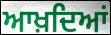
ਆਖ਼ਦਿਆਂ